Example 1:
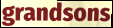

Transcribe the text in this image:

grandsons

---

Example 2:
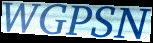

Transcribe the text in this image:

WGPSN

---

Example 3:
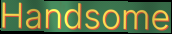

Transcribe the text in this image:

Handsome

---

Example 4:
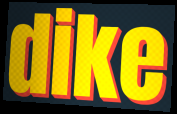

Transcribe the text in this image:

dike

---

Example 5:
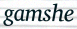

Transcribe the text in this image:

gamshe